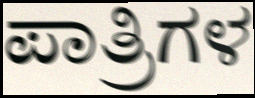
ಪಾತ್ರಿಗಳ